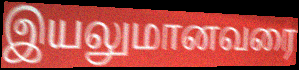
இயலுமானவரை